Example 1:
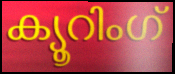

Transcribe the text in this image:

ക്യൂറിംഗ്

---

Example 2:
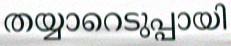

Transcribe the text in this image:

തയ്യാറെടുപ്പായി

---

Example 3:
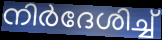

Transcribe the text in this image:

നിർദേശിച്ച്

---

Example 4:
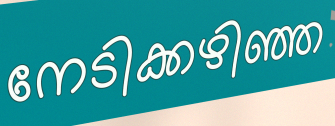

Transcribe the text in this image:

നേടിക്കഴിഞ്ഞ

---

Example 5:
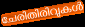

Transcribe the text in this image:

ചേരിതിരിവുകൾ